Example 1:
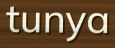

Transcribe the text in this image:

tunya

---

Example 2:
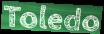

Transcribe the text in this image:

Toledo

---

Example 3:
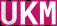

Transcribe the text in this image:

UKM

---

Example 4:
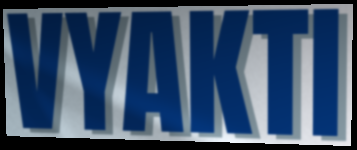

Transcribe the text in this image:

VYAKTI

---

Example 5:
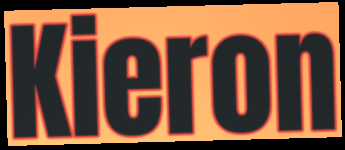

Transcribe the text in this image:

Kieron